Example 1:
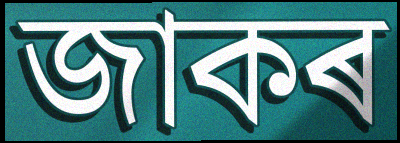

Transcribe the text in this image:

জাকৰ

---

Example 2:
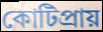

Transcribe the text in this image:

কোটিপ্ৰায়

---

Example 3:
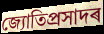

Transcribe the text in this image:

জ্যোতিপ্ৰসাদৰ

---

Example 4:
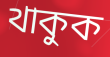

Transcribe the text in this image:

থাকুক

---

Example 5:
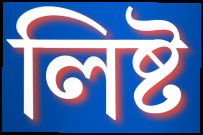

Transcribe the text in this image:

লিষ্ট